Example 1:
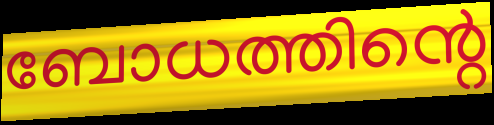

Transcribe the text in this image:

ബോധത്തിന്റെ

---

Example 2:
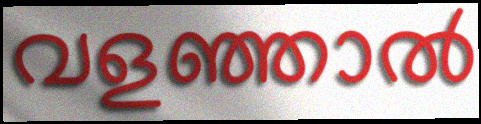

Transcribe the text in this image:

വളഞ്ഞാൽ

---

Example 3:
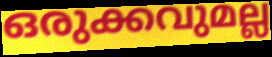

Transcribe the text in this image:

ഒരുക്കവുമല്ല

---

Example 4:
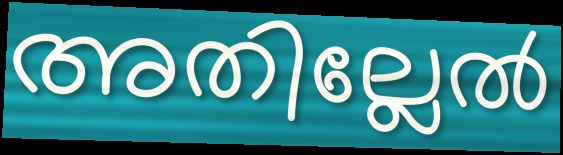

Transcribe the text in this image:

അതില്ലേൽ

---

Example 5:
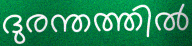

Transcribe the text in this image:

ദുരന്തത്തിൽ